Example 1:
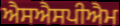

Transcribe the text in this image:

ਐਸਐਸਪੀਐਮ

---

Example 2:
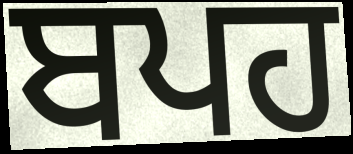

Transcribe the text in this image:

ਬਪਹ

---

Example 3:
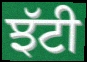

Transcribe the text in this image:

ਝੱਟੀ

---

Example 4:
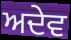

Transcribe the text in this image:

ਅਦੇਵ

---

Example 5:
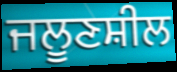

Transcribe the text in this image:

ਜਲੂਣਸ਼ੀਲ